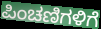
ಪಿಂಚಣಿಗಳಿಗೆ